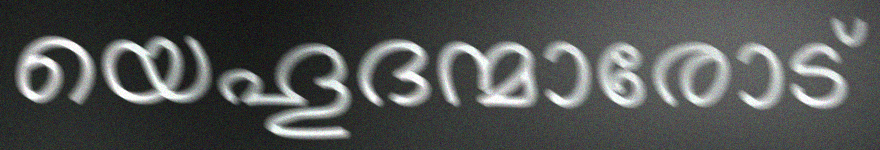
യെഹൂദന്മാരോട്